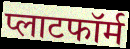
प्लाटफॉर्म